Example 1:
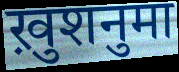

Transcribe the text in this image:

ख़ुशनुमा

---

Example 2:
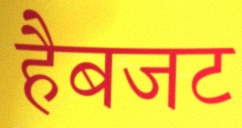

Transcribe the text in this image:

हैबजट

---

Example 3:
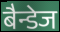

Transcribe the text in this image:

बैन्डेज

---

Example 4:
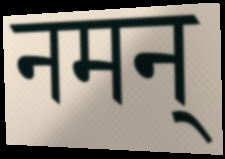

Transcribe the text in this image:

नमन्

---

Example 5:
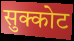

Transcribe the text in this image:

सुक्कोट